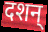
दशन्